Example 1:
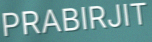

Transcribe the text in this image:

PRABIRJIT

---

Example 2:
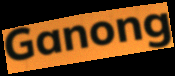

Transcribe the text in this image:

Ganong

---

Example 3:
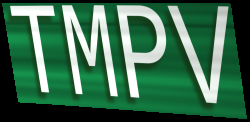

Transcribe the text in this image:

TMPV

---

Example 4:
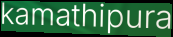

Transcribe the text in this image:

kamathipura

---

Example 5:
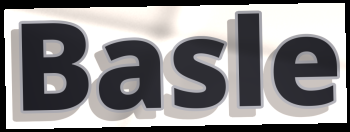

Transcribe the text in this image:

Basle